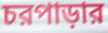
চরপাড়ার